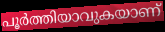
പൂർത്തിയാവുകയാണ്